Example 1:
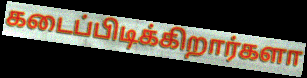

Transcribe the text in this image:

கடைப்பிடிக்கிறார்களா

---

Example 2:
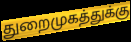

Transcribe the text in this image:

துறைமுகத்துக்கு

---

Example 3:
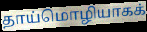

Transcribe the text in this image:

தாய்மொழியாகக்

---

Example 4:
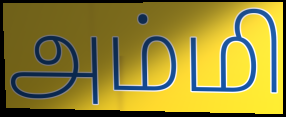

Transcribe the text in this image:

அம்மி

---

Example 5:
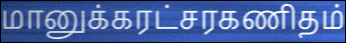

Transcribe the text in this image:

மானுக்கரட்சரகணிதம்